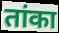
तांका